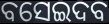
ବସେଇଦବ